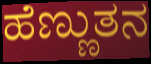
ಹೆಣ್ಣುತನ